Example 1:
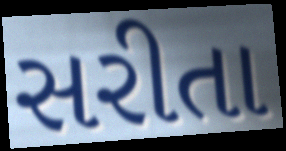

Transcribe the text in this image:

સરીતા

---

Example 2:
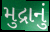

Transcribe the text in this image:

મુદ્રાનું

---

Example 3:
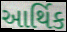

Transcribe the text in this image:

આર્થિક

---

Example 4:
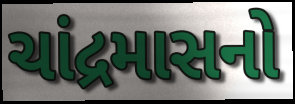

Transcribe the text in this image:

ચાંદ્રમાસનો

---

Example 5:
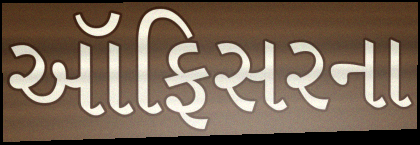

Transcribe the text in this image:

ઑફિસરના